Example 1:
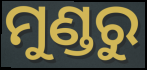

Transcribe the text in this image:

ମୁଣ୍ଡରୁ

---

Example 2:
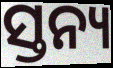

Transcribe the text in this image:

ସ୍ତନ୍ୟ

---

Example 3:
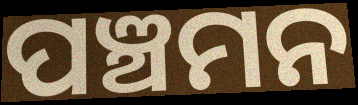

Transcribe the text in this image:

ପଞ୍ଚମନ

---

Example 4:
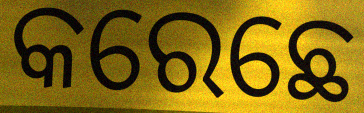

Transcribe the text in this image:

କରେଛେ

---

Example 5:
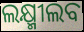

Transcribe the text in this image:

ଲକ୍ଷ୍ମୀଲବ